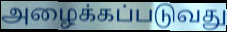
அழைக்கப்படுவது